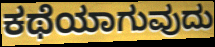
ಕಥೆಯಾಗುವುದು